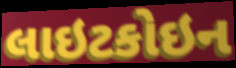
લાઇટકોઇન